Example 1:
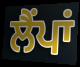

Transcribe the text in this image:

ਲੈਂਪਾਂ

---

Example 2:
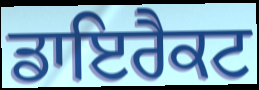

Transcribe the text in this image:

ਡਾਇਰੈਕਟ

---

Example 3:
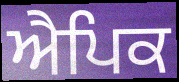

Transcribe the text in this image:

ਐਪਿਕ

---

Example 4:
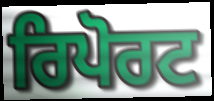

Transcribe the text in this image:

ਰਿਪੋਰਟ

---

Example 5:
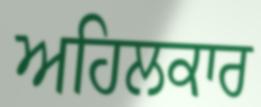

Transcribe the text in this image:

ਅਹਿਲਕਾਰ